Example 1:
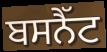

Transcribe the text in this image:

ਬਸਨੈੱਟ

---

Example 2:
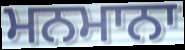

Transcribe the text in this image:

ਮਨਮਾਨਾ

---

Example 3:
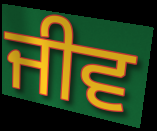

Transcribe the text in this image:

ਜੀਵ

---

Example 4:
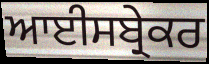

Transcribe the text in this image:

ਆਈਸਬ੍ਰੇਕਰ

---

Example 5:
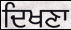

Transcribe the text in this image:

ਦਿਖਣਾ